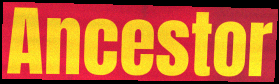
Ancestor